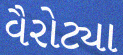
વૈરોટ્યા